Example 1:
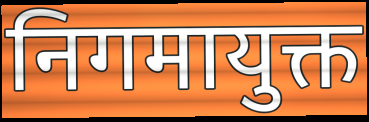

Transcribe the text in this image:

निगमायुक्त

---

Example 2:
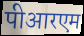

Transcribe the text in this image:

पीआरएम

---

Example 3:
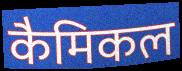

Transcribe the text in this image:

कैमिकल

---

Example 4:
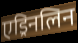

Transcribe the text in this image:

एड्रिनलिन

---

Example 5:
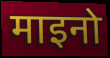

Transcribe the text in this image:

माइनो